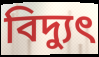
বিদ্যুৎ